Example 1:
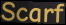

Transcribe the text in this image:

Scarf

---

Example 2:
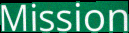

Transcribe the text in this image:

Mission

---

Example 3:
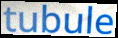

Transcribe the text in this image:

tubule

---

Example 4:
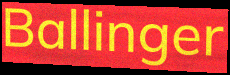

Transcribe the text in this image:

Ballinger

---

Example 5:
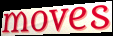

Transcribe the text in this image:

moves